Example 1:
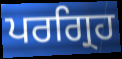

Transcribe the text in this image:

ਪਰਗ੍ਰਿਹ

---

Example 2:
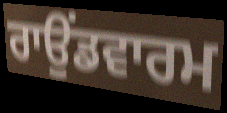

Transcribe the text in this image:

ਰਾਉਂਡਵਾਰਮ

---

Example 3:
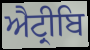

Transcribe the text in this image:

ਐਟ੍ਰੀਬਿ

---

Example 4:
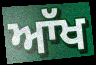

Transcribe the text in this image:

ਆੱਖ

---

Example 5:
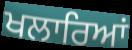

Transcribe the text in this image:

ਖਲਾਰਿਆਂ